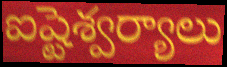
ఐష్టెశ్వర్యాలు